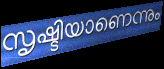
സൃഷ്ടിയാണെന്നും